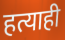
हत्याही